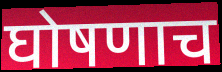
घोषणाच